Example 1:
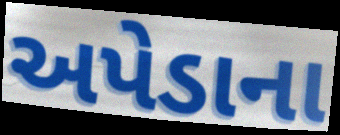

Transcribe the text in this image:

અપેડાના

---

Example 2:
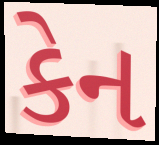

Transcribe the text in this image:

કેન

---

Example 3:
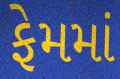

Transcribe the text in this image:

ફેમમાં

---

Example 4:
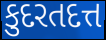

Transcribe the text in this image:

કુદરતદત્ત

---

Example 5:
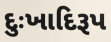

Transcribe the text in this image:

દુઃખાદિરૂપ